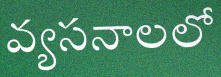
వ్యసనాలలో